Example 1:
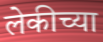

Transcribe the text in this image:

लेकीच्या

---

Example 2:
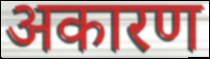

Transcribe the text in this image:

अकारण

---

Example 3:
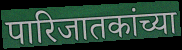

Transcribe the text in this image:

पारिजातकांच्या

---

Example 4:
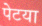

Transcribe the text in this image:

पेटया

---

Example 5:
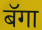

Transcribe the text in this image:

बॅगा